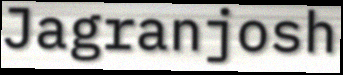
Jagranjosh